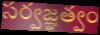
సర్వజ్ఞత్వం